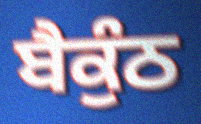
ਬੈਕੁੰਠ